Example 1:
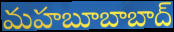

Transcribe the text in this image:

మహబూబాబాద్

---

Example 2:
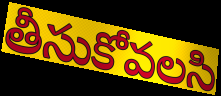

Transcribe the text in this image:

తీసుకోవలసి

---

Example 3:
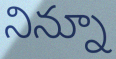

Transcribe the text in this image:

నిన్నూ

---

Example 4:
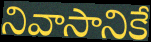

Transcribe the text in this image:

నివాసానికే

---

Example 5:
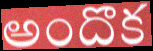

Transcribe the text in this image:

అందొక